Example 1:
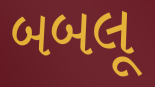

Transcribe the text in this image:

બબલૂ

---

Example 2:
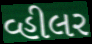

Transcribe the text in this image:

વ્હીલર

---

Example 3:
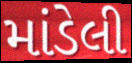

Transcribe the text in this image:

માંડેલી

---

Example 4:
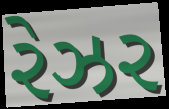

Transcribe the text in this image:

રેઝર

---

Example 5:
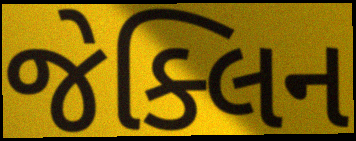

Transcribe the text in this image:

જેક્લિન